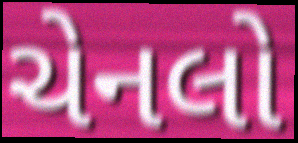
ચેનલો